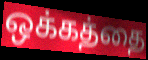
ஒக்கத்தை